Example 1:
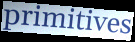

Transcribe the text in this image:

primitives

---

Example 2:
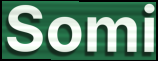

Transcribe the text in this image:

Somi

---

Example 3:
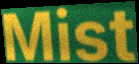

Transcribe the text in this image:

Mist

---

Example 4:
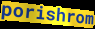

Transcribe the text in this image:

porishrom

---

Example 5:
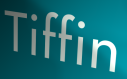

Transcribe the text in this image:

Tiffin